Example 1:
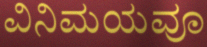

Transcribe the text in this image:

ವಿನಿಮಯವೂ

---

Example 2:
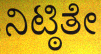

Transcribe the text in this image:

ನಿಟ್ಠಿತೇ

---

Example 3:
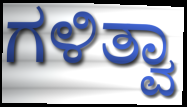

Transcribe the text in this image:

ಗಳಿತ್ವಾ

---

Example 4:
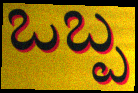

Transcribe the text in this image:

ಒಬ್ಪ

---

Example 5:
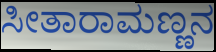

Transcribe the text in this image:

ಸೀತಾರಾಮಣ್ಣನ